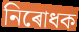
নিৰোধক